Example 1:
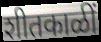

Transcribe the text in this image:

शीतकाळीं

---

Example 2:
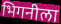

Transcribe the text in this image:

भिगनीला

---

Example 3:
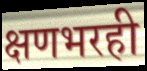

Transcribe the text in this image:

क्षणभरही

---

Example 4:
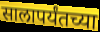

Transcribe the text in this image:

सालापर्यंतच्या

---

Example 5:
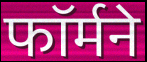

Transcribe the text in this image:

फॉर्मने